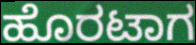
ಹೊರಟಾಗ